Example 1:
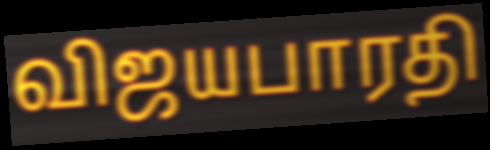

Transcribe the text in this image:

விஜயபாரதி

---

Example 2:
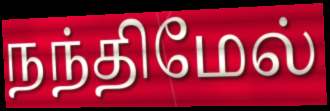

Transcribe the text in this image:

நந்திமேல்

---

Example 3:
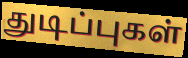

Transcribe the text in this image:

துடிப்புகள்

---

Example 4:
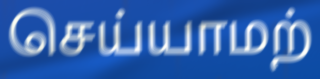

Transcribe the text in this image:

செய்யாமற்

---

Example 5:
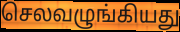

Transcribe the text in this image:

செலவழுங்கியது